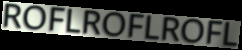
ROFLROFLROFL